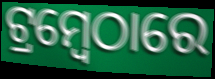
ଟ୍ରମ୍ବେଠାରେ